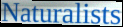
Naturalists